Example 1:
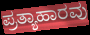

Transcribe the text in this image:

ಪ್ರತ್ಯಾಹಾರವು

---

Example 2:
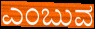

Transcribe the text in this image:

ಎಂಬುವ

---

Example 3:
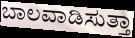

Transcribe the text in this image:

ಬಾಲವಾಡಿಸುತ್ತಾ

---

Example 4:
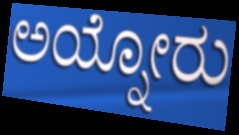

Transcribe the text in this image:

ಅಯ್ನೋರು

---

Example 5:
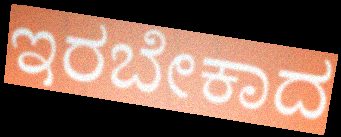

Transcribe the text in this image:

ಇರಬೇಕಾದ